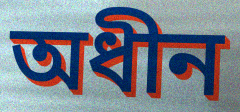
অধীন